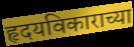
हृदयविकाराच्या